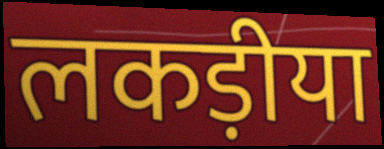
लकड़ीया